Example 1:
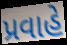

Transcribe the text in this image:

પ્રવાહે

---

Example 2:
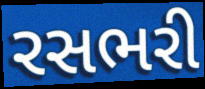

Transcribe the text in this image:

રસભરી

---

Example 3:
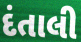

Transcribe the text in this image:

દંતાલી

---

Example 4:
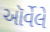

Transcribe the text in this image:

ઑર્વેલે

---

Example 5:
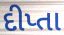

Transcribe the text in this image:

દીપ્તા